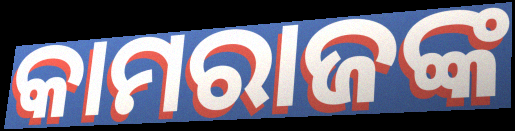
କାମରାଜଙ୍କ